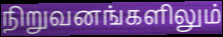
நிறுவனங்களிலும்